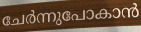
ചേർന്നുപോകാൻ